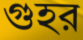
গুহর